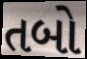
તબો